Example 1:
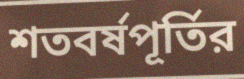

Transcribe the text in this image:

শতবর্ষপূর্তির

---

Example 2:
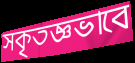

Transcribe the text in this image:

সকৃতজ্ঞভাবে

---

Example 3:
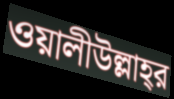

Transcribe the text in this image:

ওয়ালীউল্লাহ্‌র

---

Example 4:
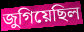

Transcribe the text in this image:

জুগিয়েছিল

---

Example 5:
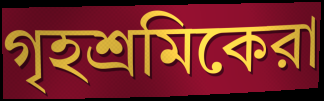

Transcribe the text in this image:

গৃহশ্রমিকেরা